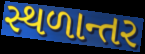
સ્થળાન્તર